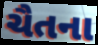
ચૈતના